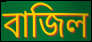
বাজিল